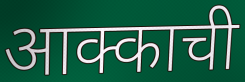
आक्काची